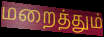
மறைத்தும்